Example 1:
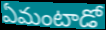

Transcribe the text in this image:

ఏమంటాడో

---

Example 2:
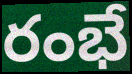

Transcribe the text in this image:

రంభే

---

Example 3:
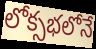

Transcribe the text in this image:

లోక్సభలోనే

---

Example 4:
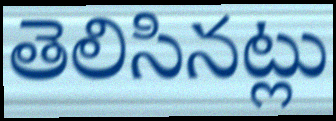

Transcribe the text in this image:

తెలిసినట్లు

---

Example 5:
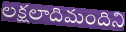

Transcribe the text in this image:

లక్షలాదిమందిని